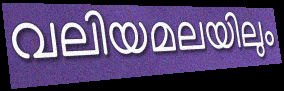
വലിയമലയിലും